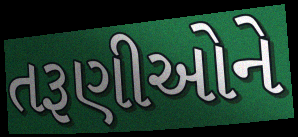
તરૂણીઓને